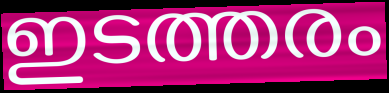
ഇടത്തരം